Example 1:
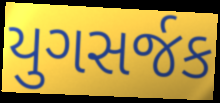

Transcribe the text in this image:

યુગસર્જક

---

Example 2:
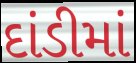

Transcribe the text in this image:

દાંડીમાં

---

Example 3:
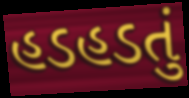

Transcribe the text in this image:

હડહડતું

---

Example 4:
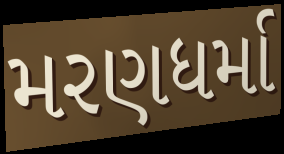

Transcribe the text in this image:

મરણધર્મા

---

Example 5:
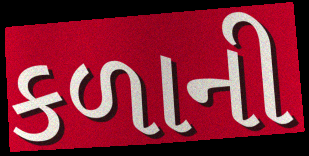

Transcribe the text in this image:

કળાની